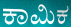
ಕಾಮಿಕ